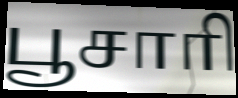
பூசாரி